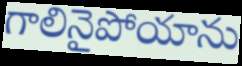
గాలినైపోయాను